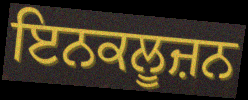
ਇਨਕਲੂਜ਼ਨ